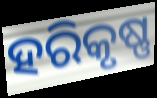
ହରିକୃଷ୍ଣ